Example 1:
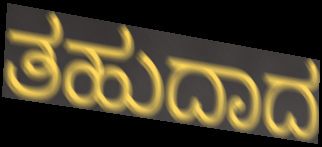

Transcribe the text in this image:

ತಹುದಾದ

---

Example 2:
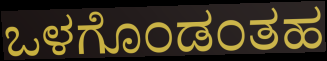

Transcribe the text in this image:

ಒಳಗೊಂಡಂತಹ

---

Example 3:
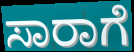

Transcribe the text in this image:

ಸಾರಾಗೆ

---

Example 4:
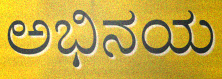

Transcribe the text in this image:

ಅಭಿನಯ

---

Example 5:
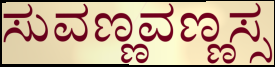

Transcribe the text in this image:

ಸುವಣ್ಣವಣ್ಣಸ್ಸ